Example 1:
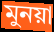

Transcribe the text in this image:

মুনয়া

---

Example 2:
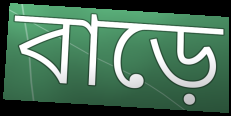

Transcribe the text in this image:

বাড়ে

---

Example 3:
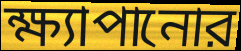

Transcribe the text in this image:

ক্ষ্যাপানোর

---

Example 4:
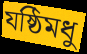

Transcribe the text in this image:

যষ্ঠিমধু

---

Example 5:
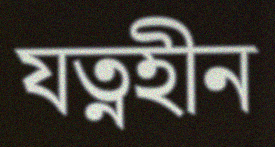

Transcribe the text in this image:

যত্নহীন